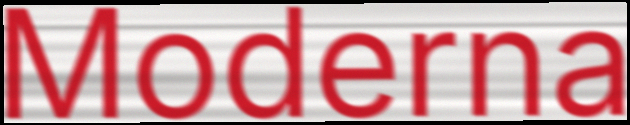
Moderna